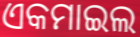
ଏକମାଇଲ